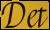
Det